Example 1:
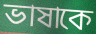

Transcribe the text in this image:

ভাষাকে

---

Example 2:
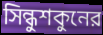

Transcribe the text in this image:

সিন্ধুশকুনের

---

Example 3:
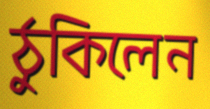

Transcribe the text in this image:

ঠুকিলেন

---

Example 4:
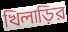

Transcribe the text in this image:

খিলাড়ির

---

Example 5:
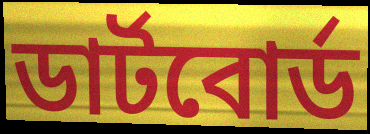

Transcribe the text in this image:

ডার্টবোর্ড